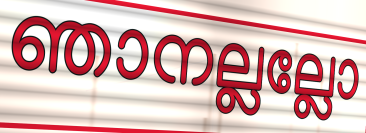
ഞാനല്ലല്ലോ